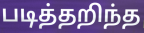
படித்தறிந்த